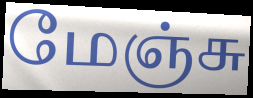
மேஞ்சு